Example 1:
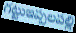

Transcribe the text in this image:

గట్టుఇప్పలపల్లి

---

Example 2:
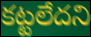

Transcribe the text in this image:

కట్టలేదని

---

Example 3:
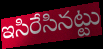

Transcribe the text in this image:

ఇసిరేసినట్టు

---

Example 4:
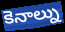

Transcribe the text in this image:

కెనాల్ను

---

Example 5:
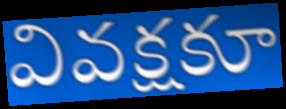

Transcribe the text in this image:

వివక్షకూ